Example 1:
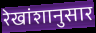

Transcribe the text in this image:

रेखांशानुसार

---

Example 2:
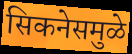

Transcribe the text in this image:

सिकनेसमुळे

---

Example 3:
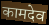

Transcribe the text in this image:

कामदेव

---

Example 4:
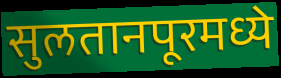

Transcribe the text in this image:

सुलतानपूरमध्ये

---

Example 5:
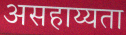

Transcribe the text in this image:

असहाय्यता